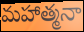
మహాత్మనా